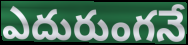
ఎదురుంగనే